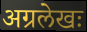
अग्रलेखः